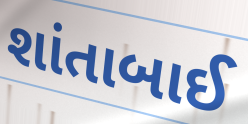
શાંતાબાઈ